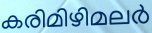
കരിമിഴിമലർ